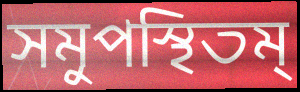
সমুপস্থিতম্